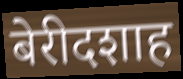
बेरीदशाह